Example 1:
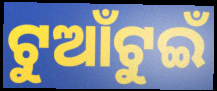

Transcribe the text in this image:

ଟୁଆଁଟୁଇଁ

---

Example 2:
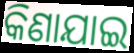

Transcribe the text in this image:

କିଣାଯାଇ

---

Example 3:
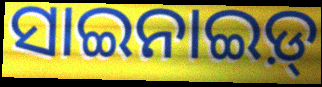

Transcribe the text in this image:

ସାଇନାଇଡ଼୍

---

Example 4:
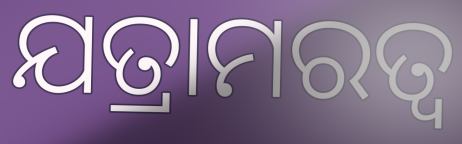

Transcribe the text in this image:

ଯତ୍ରାମରତ୍ଵ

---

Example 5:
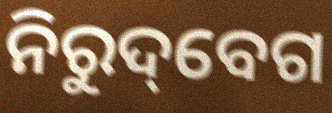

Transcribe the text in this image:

ନିରୁଦ୍‌ବେଗ